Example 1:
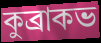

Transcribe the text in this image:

কুব্রাকভ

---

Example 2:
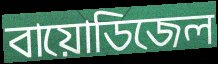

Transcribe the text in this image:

বায়োডিজেল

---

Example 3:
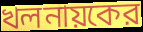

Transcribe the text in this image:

খলনায়কের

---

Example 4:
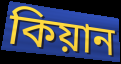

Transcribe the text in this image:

কিয়ান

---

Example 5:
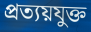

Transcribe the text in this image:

প্রত্যয়যুক্ত